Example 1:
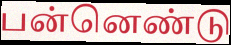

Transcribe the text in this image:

பன்னெண்டு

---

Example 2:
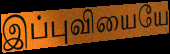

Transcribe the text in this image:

இப்புவியையே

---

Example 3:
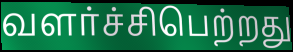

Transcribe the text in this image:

வளர்ச்சிபெற்றது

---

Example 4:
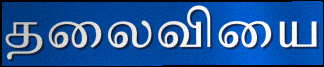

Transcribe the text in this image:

தலைவியை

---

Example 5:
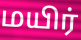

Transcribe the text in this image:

மயிர்